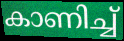
കാണിച്ച്